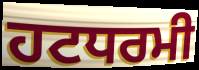
ਹਟਧਰਮੀ